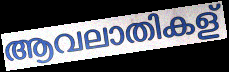
ആവലാതികള്